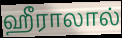
ஹீராலால்